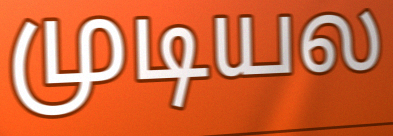
முடியல